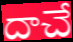
దాచే